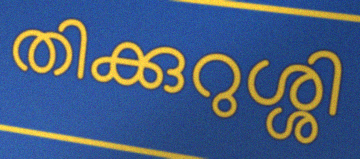
തിക്കുറുശ്ശി